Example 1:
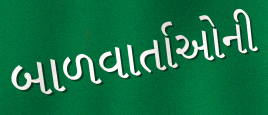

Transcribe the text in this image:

બાળવાર્તાઓની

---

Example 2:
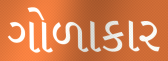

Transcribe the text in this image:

ગોળાકાર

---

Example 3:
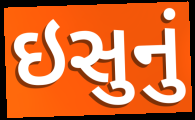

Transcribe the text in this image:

ઇસુનું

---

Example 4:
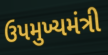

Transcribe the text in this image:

ઉપમુખ્યમંત્રી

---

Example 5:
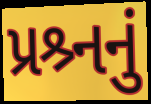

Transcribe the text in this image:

પ્રશ્ર્નનું